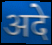
अदे